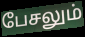
பேசலும்